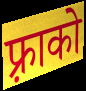
फ़्राको